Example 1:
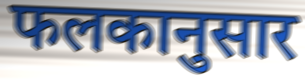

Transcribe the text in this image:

फलकानुसार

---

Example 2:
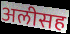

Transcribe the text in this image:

अलीसह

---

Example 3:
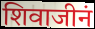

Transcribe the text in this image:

शिवाजीनं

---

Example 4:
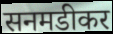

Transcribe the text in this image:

सनमडीकर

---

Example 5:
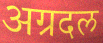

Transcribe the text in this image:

अग्रदल